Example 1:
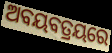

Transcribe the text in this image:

ଅବୟବତ୍ରୟରେ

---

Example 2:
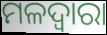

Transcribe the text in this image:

ମଳଦ୍ଵାରା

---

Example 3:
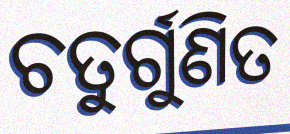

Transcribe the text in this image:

ଚତୁର୍ଗୁଣିତ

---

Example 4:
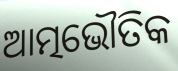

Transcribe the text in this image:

ଆତ୍ମଭୌତିକ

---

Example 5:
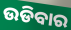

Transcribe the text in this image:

ଉଡିବାର